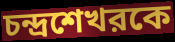
চন্দ্রশেখরকে